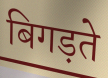
बिगड़ते